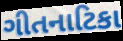
ગીતનાટિકા